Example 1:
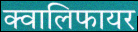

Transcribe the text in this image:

क्वालिफायर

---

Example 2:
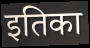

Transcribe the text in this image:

इतिका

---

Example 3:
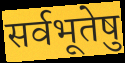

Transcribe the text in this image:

सर्वभूतेषु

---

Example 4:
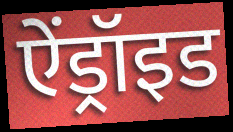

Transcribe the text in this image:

ऐंड्रॉइड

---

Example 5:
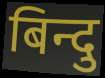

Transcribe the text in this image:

बिन्दु